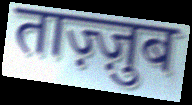
ताज़्ज़ुब